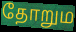
தோறும